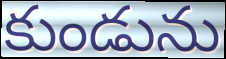
కుండును